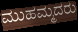
ಮುಹಮ್ಮದರು